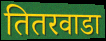
तितरवाडा